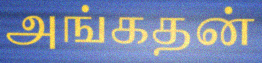
அங்கதன்